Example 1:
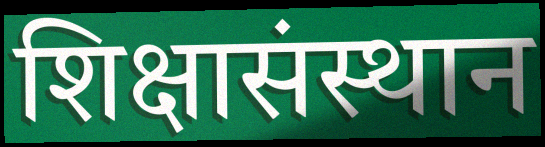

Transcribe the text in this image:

शिक्षासंस्थान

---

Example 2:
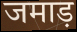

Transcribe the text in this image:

जमाड़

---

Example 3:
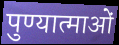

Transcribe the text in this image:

पुण्यात्माओं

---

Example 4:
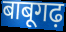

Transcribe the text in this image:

बाबूगढ़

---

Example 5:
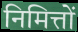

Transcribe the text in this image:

निमित्तों